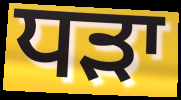
ਧੜਾ